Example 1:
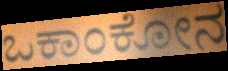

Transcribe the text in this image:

ಒಕಾಂಕೋನ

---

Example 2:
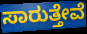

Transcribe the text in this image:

ಸಾರುತ್ತೇವೆ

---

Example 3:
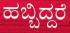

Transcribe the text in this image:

ಹಬ್ಬಿದ್ದರೆ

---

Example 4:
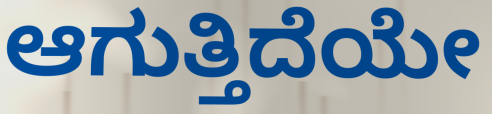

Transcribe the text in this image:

ಆಗುತ್ತಿದೆಯೇ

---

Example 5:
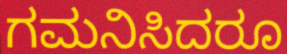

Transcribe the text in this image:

ಗಮನಿಸಿದರೂ